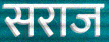
सराज